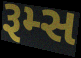
રૂમ્સ